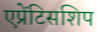
एप्रेंटिसशिप